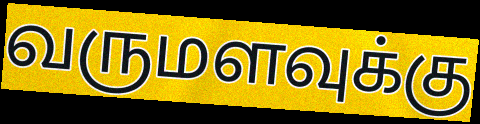
வருமளவுக்கு